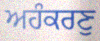
ਅਹੰਕਰਣੁ